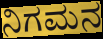
ನಿಗಮನ